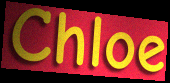
Chloe